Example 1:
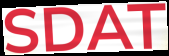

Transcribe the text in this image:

SDAT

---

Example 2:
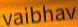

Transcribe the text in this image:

vaibhav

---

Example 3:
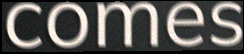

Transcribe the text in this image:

comes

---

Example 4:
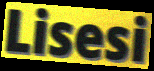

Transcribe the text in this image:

Lisesi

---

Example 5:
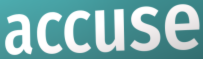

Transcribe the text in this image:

accuse